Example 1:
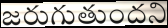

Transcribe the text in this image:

జరుగుతుందని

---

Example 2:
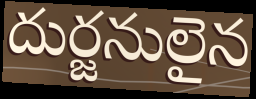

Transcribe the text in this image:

దుర్జనులైన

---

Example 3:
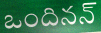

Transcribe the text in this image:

ఒందినన్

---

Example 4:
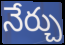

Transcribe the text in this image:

నేర్చు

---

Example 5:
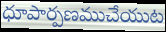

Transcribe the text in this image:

ధూపార్పణముచేయుట